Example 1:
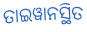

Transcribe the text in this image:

ତାଇୱାନସ୍ଥିତ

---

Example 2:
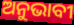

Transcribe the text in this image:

ଅନୁଭାବୀ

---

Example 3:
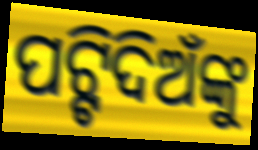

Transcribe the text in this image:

ପଟ୍ଟିଦିଅଁଙ୍କୁ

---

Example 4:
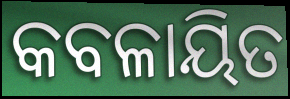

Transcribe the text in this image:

କବଳାୟିତ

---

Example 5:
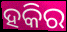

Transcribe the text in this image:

ହକିର